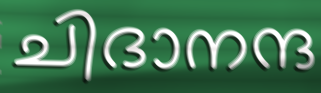
ചിദാനന്ദ